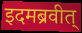
इदमब्रवीत्